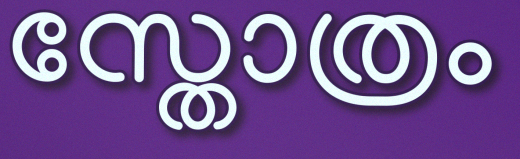
സ്തോത്രം